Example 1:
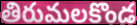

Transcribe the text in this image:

తిరుమలకొండ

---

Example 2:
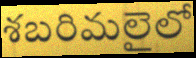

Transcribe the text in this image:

శబరిమలైలో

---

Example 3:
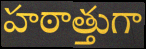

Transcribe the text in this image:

హఠాత్తుగా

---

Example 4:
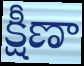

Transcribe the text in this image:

క్షీణా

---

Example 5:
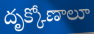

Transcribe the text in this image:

దృక్కోణాలూ